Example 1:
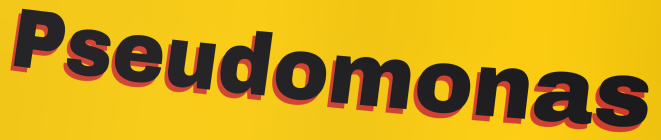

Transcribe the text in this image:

Pseudomonas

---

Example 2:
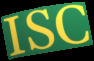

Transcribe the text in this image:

ISC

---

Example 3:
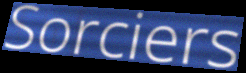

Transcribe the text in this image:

Sorciers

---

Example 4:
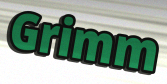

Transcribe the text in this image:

Grimm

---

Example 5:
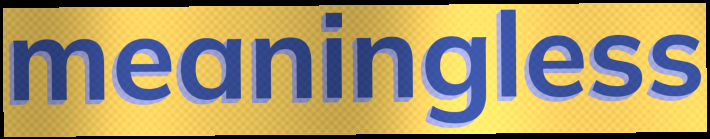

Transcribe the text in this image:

meaningless